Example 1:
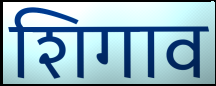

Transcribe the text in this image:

शिगाव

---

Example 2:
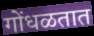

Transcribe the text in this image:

गोंधळतात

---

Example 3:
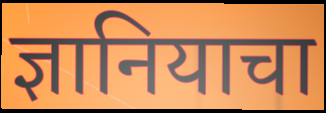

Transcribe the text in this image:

ज्ञानियाचा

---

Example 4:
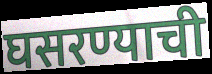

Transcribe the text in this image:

घसरण्याची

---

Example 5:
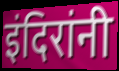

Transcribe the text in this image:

इंदिरांनी